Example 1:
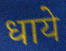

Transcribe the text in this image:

धाये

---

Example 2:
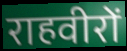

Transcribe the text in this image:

राहवीरों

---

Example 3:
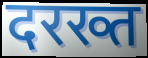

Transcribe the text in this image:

दरख्त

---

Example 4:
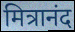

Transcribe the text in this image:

मित्रानंद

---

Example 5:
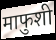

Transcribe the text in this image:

माफुशी